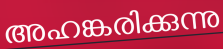
അഹങ്കരിക്കുന്നു